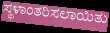
ಸ್ಥಳಾಂತರಿಸಲಾಯಿತು